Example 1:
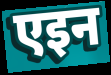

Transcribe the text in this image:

एइन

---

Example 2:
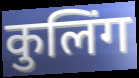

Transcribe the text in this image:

कुलिंग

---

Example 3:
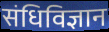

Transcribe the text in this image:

संधिविज्ञान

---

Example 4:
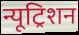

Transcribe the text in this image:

न्यूट्रिशन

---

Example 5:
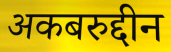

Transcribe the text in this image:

अकबरुद्दीन